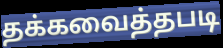
தக்கவைத்தபடி